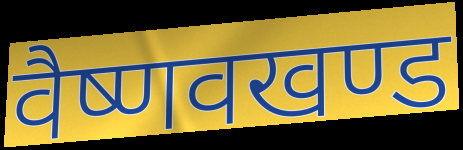
वैष्णवखण्ड